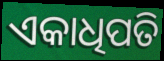
ଏକାଧିପତି